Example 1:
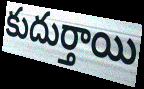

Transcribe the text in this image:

కుదుర్తాయి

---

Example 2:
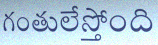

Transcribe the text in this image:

గంతులేస్తోంది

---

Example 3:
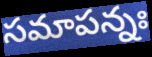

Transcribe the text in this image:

సమాపన్నః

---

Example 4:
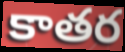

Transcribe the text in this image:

కాతర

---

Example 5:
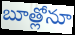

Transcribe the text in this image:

బూత్లోనూ